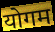
योगम